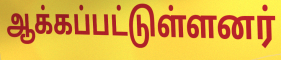
ஆக்கப்பட்டுள்ளனர்